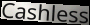
Cashless